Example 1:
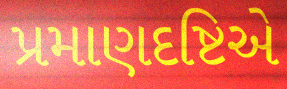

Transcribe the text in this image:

પ્રમાણદષ્ટિએ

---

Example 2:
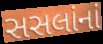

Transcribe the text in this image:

સસલાંનાં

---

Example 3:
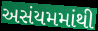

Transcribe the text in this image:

અસંયમમાંથી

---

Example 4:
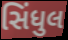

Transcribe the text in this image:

સિંધુલ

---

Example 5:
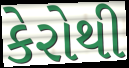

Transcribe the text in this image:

કેરોથી